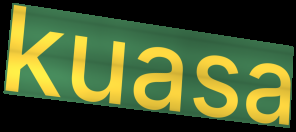
kuasa